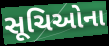
સૂચિઓના